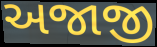
અજાજી